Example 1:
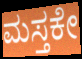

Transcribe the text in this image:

ಮಸ್ತಕೇ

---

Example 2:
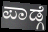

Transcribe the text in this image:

ಪಾಡ್ಗೆ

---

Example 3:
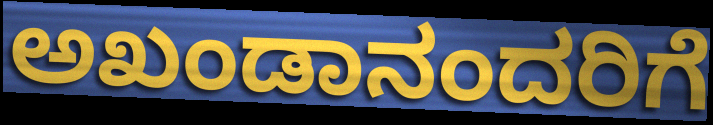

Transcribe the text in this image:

ಅಖಂಡಾನಂದರಿಗೆ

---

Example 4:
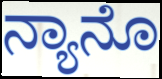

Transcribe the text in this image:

ನ್ಯಾನೊ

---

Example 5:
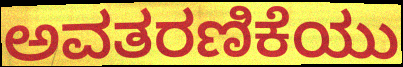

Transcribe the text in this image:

ಅವತರಣಿಕೆಯು